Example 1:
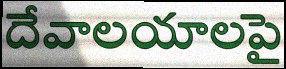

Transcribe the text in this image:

దేవాలయాలపై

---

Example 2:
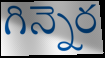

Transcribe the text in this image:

గిన్నెర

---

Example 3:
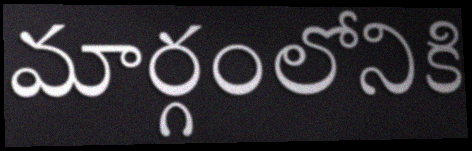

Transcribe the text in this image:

మార్గంలోనికి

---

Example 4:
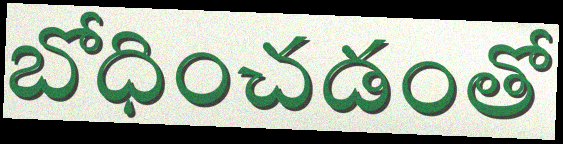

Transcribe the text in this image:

బోధించడంతో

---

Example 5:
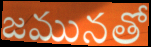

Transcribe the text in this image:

జమునతో